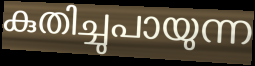
കുതിച്ചുപായുന്ന